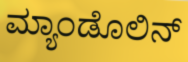
ಮ್ಯಾಂಡೊಲಿನ್